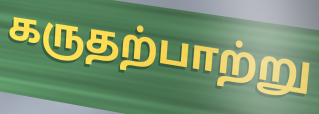
கருதற்பாற்று